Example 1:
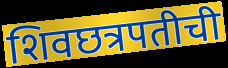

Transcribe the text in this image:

शिवछत्रपतीची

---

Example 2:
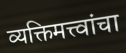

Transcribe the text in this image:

व्यक्तिमत्त्वांचा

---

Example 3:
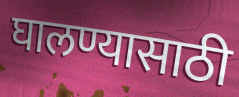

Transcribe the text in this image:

घालण्यासाठी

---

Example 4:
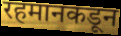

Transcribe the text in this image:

रहमानकडून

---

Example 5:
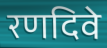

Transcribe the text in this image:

रणदिवे